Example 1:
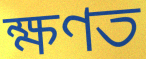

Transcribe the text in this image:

ক্ষণত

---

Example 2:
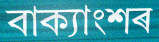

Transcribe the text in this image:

বাক্যাংশৰ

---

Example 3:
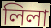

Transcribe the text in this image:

লিলা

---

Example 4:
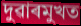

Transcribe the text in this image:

দুৱাৰমুখত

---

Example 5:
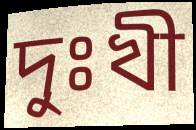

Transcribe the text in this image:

দুঃখী